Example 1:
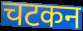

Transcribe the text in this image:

चटकन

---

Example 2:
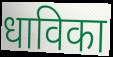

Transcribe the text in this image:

धाविका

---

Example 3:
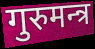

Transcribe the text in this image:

गुरुमन्त्र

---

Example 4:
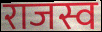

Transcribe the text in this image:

राजस्‍व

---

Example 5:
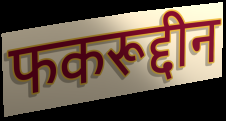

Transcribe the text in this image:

फकरूद्दीन